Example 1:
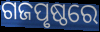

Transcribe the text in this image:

ଗଜପୃଷ୍ଠରେ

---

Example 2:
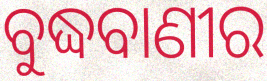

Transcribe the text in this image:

ବୁଦ୍ଧବାଣୀର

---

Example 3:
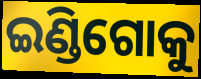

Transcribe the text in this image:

ଇଣ୍ଡିଗୋକୁ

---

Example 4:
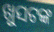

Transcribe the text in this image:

ଖୁସଟଙ୍କ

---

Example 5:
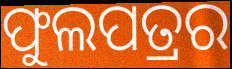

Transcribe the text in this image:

ଫୁଲପତ୍ରର